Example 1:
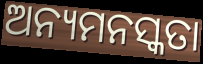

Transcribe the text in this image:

ଅନ୍ୟମନସ୍କତା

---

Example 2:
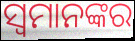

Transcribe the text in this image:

ସ୍ୱମାନଙ୍କର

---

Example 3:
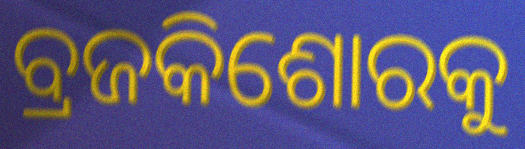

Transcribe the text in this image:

ବ୍ରଜକିଶୋରକୁ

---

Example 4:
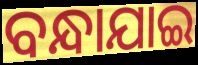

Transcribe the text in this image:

ବନ୍ଧାଯାଇ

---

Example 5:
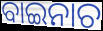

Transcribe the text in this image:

ବାଇନାଚ